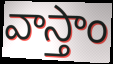
వాస్తాం